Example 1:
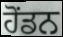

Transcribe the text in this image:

ਹੋਂਡਨ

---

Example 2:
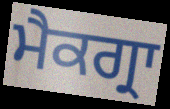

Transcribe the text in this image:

ਮੈਕਗ੍ਰਾ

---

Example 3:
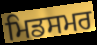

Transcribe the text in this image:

ਮਿਡਸਮਰ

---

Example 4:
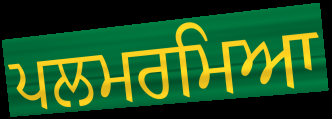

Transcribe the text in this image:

ਪਲਮਰਮਿਆ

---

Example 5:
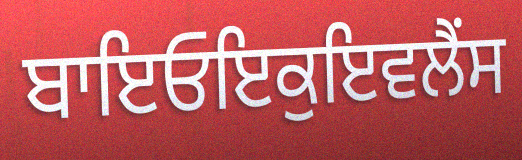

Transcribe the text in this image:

ਬਾਇਓਇਕੁਇਵਲੈਂਸ